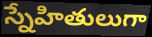
స్నేహితులుగా